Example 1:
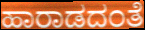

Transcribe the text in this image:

ಹಾರಾಡದಂತೆ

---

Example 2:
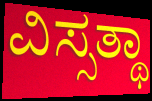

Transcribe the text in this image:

ವಿಸ್ಸತ್ಥಾ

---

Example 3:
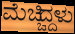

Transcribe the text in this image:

ಮೆಚ್ಚಿದ್ದಳು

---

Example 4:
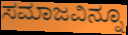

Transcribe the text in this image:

ಸಮಾಜವಿನ್ನೂ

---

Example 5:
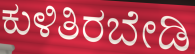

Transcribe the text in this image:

ಕುಳಿತಿರಬೇಡಿ